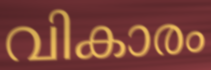
വികാരം